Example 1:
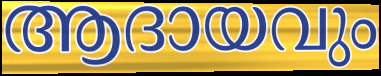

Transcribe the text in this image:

ആദായവും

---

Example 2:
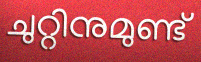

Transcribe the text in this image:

ചുറ്റിനുമുണ്ട്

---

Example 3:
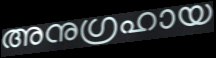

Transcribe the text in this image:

അനുഗ്രഹായ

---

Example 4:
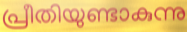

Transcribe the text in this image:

പ്രീതിയുണ്ടാകുന്നു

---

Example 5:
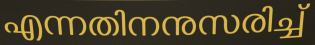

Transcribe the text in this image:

എന്നതിനനുസരിച്ച്